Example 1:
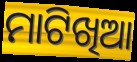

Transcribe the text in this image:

ମାଟିଖିଆ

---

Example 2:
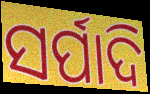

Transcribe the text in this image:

ସର୍ପାଦି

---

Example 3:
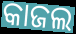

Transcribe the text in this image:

କାଜଲ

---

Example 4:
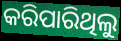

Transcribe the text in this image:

କରିପାରିଥିଲୁ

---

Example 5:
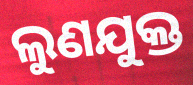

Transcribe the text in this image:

ଲୁଣଯୁକ୍ତ